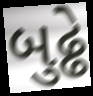
બુઢ્ઢે